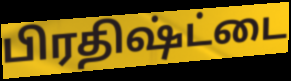
பிரதிஷ்ட்டை